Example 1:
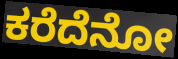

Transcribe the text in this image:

ಕರೆದೆನೋ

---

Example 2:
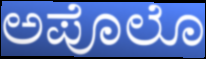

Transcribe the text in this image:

ಅಪೊಲೊ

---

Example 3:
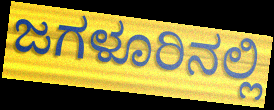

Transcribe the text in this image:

ಜಗಳೂರಿನಲ್ಲಿ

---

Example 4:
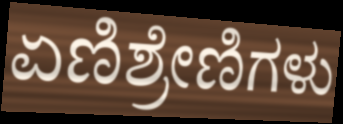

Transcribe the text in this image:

ಏಣಿಶ್ರೇಣಿಗಳು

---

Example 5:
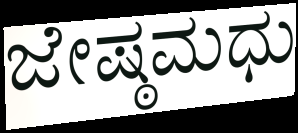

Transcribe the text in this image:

ಜೇಷ್ಠಮಧು